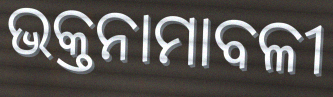
ଭକ୍ତନାମାବଳୀ